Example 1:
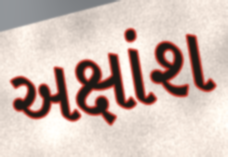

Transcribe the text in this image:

અક્ષાંશ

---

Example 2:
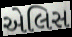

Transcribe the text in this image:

એલિસ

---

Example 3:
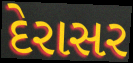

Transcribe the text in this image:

દેરાસર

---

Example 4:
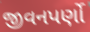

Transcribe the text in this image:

જીવનપર્ણો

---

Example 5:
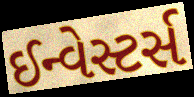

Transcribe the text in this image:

ઈન્વેસ્ટર્સ